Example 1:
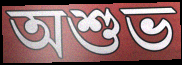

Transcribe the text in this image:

অশুভ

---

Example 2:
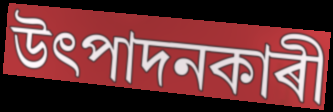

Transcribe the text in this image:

উৎপাদনকাৰী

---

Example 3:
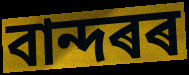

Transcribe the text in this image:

বান্দৰৰ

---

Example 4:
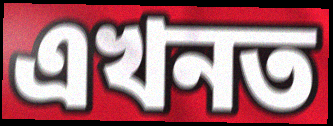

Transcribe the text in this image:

এখনত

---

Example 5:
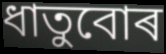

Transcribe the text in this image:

ধাতুবোৰ